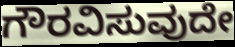
ಗೌರವಿಸುವುದೇ